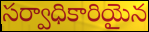
సర్వాధికారియైన